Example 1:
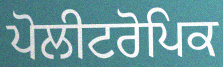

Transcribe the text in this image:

ਪੋਲੀਟਰੋਪਿਕ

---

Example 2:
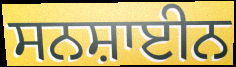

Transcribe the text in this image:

ਸਨਸ਼ਾਈਨ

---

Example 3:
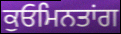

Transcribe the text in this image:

ਕੁਓਮਿਨਤਾਂਗ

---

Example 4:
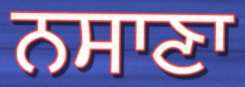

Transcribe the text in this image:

ਨਸਾਣਾ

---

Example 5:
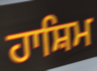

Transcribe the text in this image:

ਹਾਸ਼ਿਮ